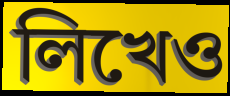
লিখেও